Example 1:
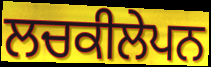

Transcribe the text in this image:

ਲਚਕੀਲੇਪਨ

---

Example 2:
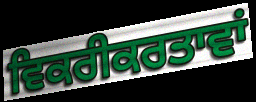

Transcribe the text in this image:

ਵਿਕਰੀਕਰਤਾਵਾਂ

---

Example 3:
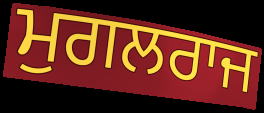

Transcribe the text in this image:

ਮੁਗਲਰਾਜ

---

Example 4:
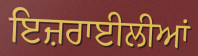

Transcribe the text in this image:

ਇਜ਼ਰਾਈਲੀਆਂ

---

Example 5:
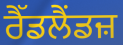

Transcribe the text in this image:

ਰੈੱਡਲੈਂਡਜ਼